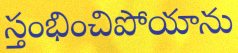
స్తంభించిపోయాను